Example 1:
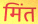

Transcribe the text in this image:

मिंत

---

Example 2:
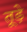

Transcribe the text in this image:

तूड़े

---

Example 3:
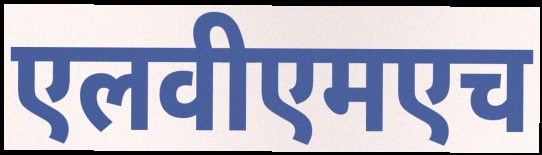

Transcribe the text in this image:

एलवीएमएच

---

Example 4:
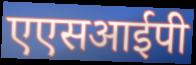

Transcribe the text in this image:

एएसआईपी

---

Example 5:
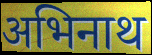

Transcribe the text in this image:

अभिनाथ